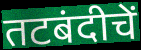
तटबंदीचें